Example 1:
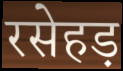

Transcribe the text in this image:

रसेहड़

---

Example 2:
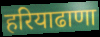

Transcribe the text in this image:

हरियाढाणा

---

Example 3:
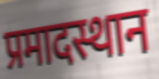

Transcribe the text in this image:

प्रमादस्थान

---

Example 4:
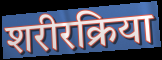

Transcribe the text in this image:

शरीरक्रिया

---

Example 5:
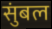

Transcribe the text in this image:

सुंबल